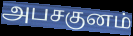
அபசகுனம்